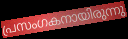
പ്രസംഗകനായിരുന്നു